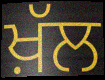
ਖ਼ੱਲ